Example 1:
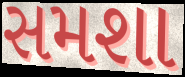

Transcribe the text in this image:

સમશા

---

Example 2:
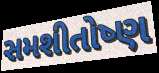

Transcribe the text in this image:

સમશીતોષ્ણ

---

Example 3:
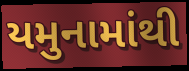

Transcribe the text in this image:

યમુનામાંથી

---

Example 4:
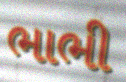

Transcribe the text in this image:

ભાભી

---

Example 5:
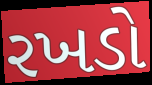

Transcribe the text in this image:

રખડો